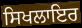
ਸਿਖਲਾਇਰ